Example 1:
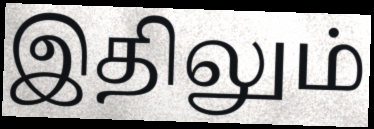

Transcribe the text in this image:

இதிலும்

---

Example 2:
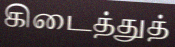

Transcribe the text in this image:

கிடைத்துத்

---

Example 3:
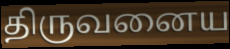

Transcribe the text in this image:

திருவனைய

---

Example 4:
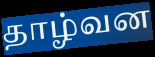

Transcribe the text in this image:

தாழ்வன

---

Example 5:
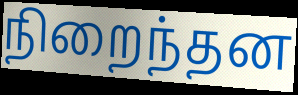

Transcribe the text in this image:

நிறைந்தன